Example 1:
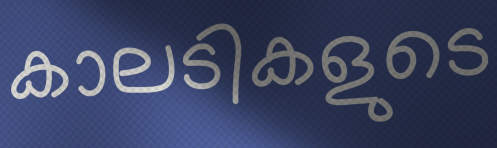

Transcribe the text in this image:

കാലടികളുടെ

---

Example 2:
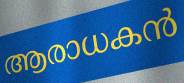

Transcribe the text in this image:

ആരാധകൻ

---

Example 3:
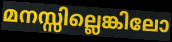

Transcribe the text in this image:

മനസ്സില്ലെങ്കിലോ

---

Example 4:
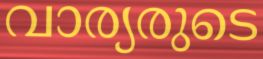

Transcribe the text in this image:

വാര്യരുടെ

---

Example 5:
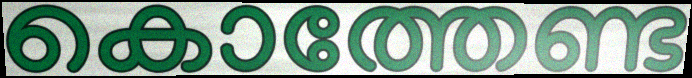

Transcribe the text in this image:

കൊത്തേണ്ട